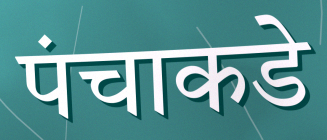
पंचाकडे